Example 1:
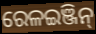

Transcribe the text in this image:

ରେଳଇଞ୍ଜିନ୍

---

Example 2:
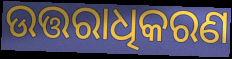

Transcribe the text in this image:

ଉତ୍ତରାଧିକରଣ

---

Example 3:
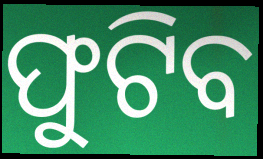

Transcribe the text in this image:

ଫୁଟିବ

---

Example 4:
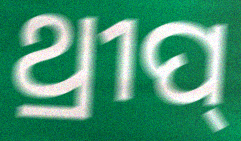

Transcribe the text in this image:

ଥ୍ରୀପ୍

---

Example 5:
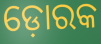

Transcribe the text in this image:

ଡ଼ୋରକ